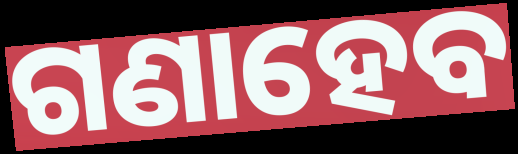
ଗଣାହେବ